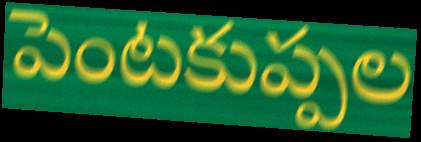
పెంటకుప్పల